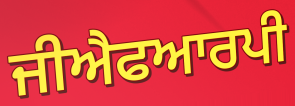
ਜੀਐਫਆਰਪੀ